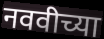
नववीच्या